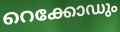
റെക്കോഡും